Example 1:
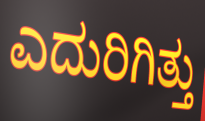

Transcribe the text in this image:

ಎದುರಿಗಿತ್ತು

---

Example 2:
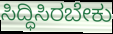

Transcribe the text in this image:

ಸಿದ್ಧಿಸಿರಬೇಕು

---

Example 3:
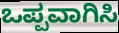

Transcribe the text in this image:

ಒಪ್ಪವಾಗಿಸಿ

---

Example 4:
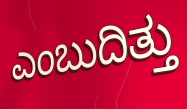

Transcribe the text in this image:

ಎಂಬುದಿತ್ತು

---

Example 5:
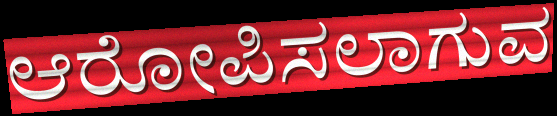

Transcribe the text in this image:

ಆರೋಪಿಸಲಾಗುವ